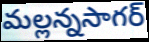
మల్లన్నసాగర్